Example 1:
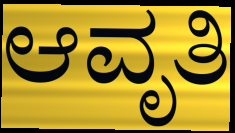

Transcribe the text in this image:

ಆವೃತಿ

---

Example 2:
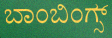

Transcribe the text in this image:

ಬಾಂಬಿಂಗ್ಸ್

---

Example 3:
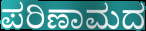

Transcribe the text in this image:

ಪರಿಣಾಮದ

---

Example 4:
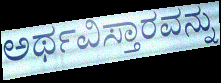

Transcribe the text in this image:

ಅರ್ಥವಿಸ್ತಾರವನ್ನು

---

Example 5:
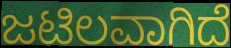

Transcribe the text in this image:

ಜಟಿಲವಾಗಿದೆ